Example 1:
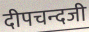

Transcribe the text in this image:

दीपचन्दजी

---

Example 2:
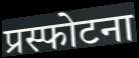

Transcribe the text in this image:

प्रस्फोटना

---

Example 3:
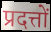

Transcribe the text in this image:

प्रदत्तों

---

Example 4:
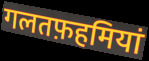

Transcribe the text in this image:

गलतफ़हमियां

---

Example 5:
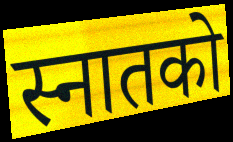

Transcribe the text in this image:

स्नातको